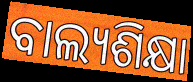
ବାଲ୍ୟଶିକ୍ଷା